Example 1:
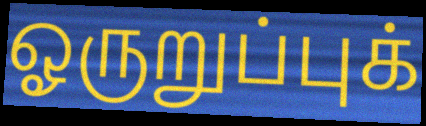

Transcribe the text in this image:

ஓருறுப்புக்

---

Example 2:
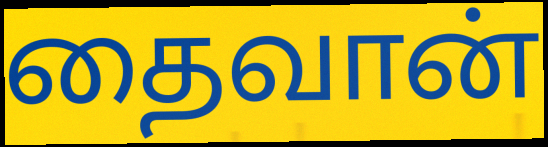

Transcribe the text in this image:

தைவான்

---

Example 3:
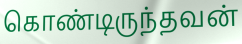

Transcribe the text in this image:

கொண்டிருந்தவன்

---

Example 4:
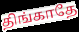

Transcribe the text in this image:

திங்காதே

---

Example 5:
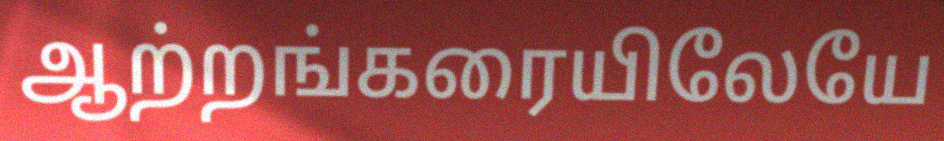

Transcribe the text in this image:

ஆற்றங்கரையிலேயே